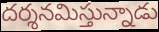
దర్శనమిస్తున్నాడు